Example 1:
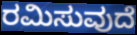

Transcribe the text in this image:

ರಮಿಸುವುದೆ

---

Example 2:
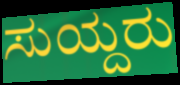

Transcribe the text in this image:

ಸುಯ್ದರು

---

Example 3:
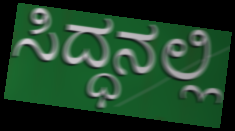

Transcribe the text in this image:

ಸಿದ್ಧನಲ್ಲಿ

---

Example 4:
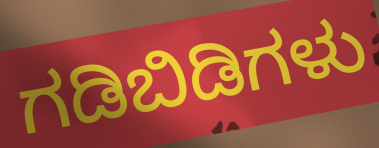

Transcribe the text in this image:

ಗಡಿಬಿಡಿಗಳು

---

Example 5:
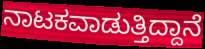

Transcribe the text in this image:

ನಾಟಕವಾಡುತ್ತಿದ್ದಾನೆ